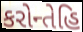
કરોન્તેહિ